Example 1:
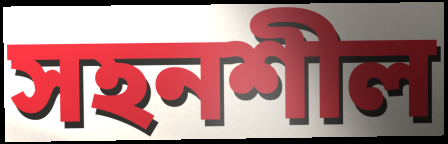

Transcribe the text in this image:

সহনশীল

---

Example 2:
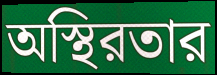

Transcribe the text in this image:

অস্থিরতার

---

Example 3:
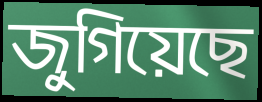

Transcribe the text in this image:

জুগিয়েছে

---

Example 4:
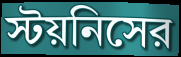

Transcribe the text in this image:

স্টয়নিসের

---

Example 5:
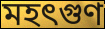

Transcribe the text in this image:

মহৎগুণ